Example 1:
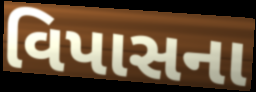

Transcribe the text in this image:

વિપાસના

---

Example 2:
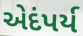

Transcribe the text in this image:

એદંપર્ય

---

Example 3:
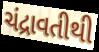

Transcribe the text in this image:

ચંદ્રાવતીથી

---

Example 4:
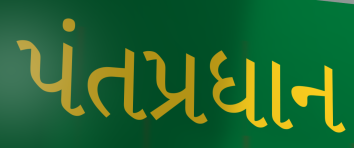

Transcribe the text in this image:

પંતપ્રધાન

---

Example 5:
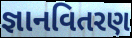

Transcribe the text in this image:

જ્ઞાનવિતરણ